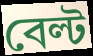
বেল্ট